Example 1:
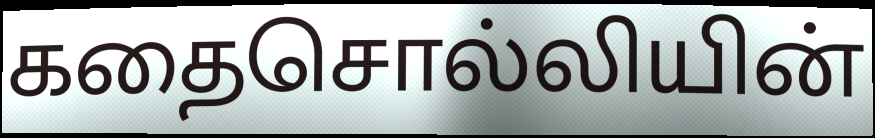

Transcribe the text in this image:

கதைசொல்லியின்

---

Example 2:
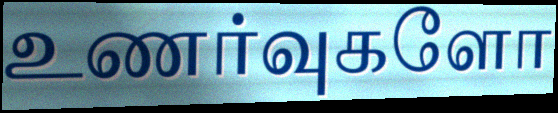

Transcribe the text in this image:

உணர்வுகளோ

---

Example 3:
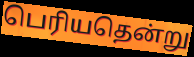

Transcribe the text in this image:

பெரியதென்று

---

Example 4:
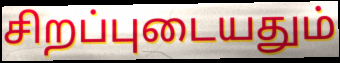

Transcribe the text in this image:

சிறப்புடையதும்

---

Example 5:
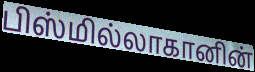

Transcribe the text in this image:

பிஸ்மில்லாகானின்